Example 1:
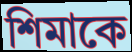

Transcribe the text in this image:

শিমাকে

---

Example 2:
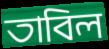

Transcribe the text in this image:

তাবিল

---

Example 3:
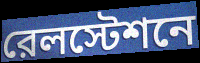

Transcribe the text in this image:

রেলস্টেশনে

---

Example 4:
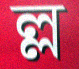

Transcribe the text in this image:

ল্ল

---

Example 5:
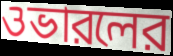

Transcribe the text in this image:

ওভারলের